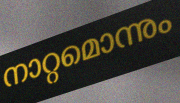
നാറ്റമൊന്നും